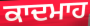
ਕਾਦਮਾਹ